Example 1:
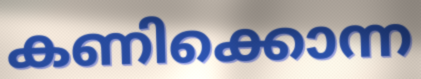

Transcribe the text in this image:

കണിക്കൊന്ന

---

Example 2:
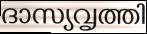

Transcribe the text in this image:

ദാസ്യവൃത്തി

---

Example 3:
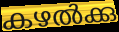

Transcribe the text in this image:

കഴൽക്കു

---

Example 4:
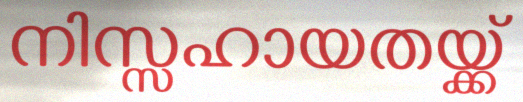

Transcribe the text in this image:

നിസ്സഹായതയ്ക്ക്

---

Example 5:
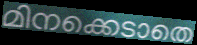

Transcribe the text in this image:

മിനക്കെടാതെ